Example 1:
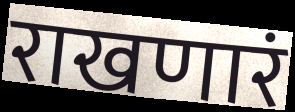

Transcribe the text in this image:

राखणारं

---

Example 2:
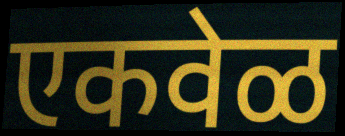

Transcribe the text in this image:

एकवेळ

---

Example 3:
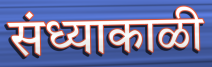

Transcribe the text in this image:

संध्‍याकाळी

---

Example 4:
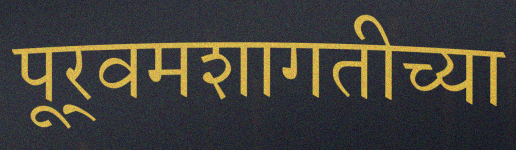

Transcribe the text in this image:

पूर्वमशागतीच्या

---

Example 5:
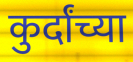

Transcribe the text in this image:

कुर्दांच्या